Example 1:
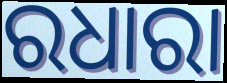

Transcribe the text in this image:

ରଧାରା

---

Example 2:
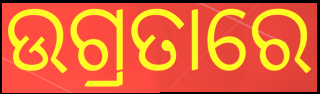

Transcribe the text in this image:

ଉଗ୍ରତାରେ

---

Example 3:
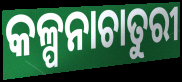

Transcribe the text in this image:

କଳ୍ପନାଚାତୁରୀ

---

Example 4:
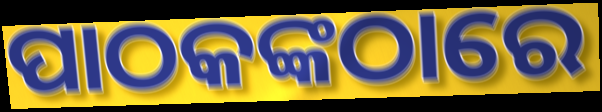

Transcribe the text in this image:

ପାଠକଙ୍କଠାରେ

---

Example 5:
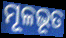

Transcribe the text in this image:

ମୂଳଭୂତ